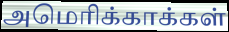
அமெரிக்காக்கள்